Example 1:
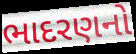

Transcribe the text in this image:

ભાદરણનો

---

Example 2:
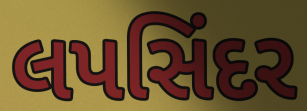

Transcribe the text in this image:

લપસિંદર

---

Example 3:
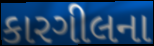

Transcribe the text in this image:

કારગીલના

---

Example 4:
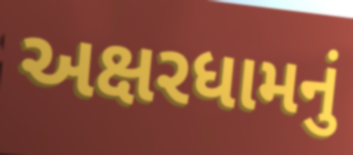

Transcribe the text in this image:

અક્ષરધામનું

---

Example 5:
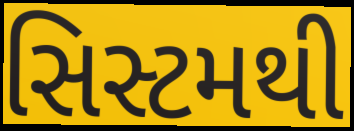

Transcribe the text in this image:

સિસ્ટમથી